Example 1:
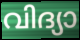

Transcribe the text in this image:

വിദ്യാ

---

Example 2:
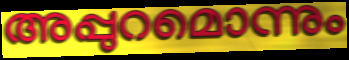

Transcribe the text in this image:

അപ്പുറമൊന്നും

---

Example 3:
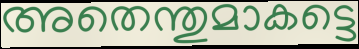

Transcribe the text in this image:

അതെന്തുമാകട്ടെ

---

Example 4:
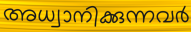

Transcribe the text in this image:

അധ്വാനിക്കുന്നവർ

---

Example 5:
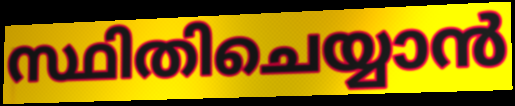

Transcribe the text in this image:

സ്ഥിതിചെയ്യാൻ